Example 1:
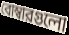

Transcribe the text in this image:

বোম্বারগুলো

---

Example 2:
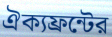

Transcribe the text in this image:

ঐক্যফ্রন্টের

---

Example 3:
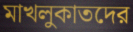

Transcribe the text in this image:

মাখলুকাতদের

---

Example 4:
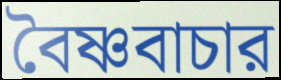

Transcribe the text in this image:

বৈষ্ণবাচার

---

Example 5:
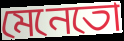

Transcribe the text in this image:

মেনেতো